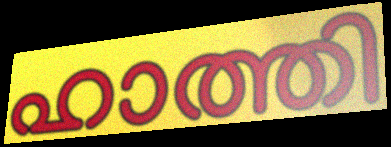
ഹാത്തി